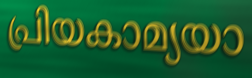
പ്രിയകാമ്യയാ